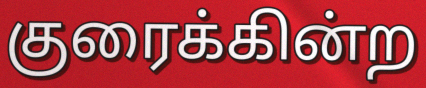
குரைக்கின்ற